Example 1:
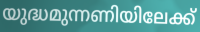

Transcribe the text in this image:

യുദ്ധമുന്നണിയിലേക്ക്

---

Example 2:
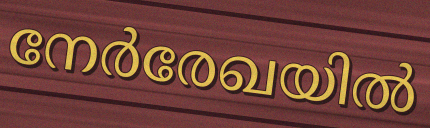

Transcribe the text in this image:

നേർരേഖയിൽ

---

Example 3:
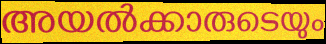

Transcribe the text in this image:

അയൽക്കാരുടെയും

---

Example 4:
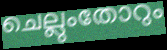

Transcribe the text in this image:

ചെല്ലുംതോറും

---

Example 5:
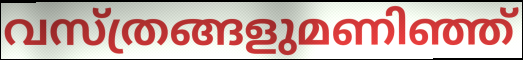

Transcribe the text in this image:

വസ്ത്രങ്ങളുമണിഞ്ഞ്